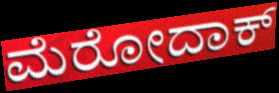
ಮೆರೋದಾಕ್